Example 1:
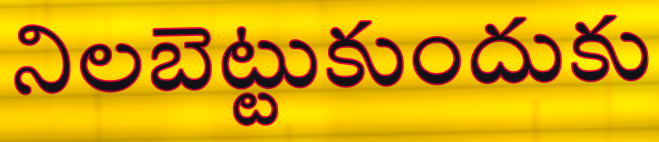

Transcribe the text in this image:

నిలబెట్టుకుందుకు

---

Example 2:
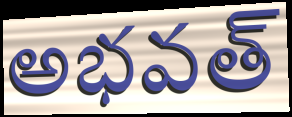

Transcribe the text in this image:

అభవత్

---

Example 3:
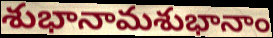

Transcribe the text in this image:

శుభానామశుభానాం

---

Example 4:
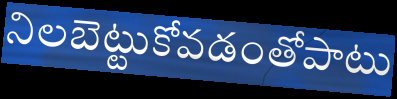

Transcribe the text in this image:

నిలబెట్టుకోవడంతోపాటు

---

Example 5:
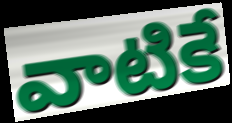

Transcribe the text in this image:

వాటికే